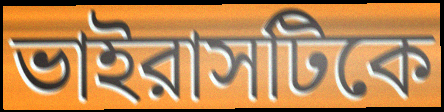
ভাইরাসটিকে